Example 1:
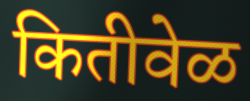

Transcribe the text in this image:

कितीवेळ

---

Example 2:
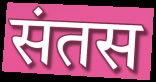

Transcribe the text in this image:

संतस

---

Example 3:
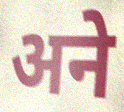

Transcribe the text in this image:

अने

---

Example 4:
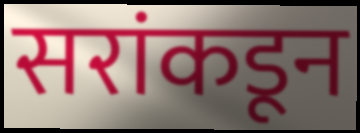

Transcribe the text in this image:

सरांकडून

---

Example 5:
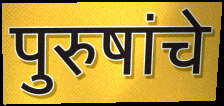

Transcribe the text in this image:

पुरुषांचे